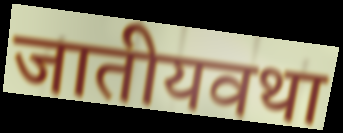
जातीयवथा